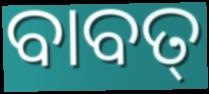
ବାବତ୍